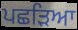
ਪਛੜਿਆ